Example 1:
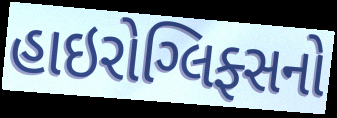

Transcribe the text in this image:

હાઇરોગ્લિફ્સનો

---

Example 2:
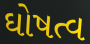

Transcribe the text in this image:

ઘોષત્વ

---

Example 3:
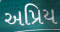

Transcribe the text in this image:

અપ્રિય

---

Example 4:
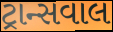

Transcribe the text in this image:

ટ્રાન્સવાલ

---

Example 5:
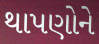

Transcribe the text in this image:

થાપણોને